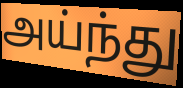
அய்ந்து